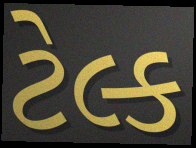
ટેલ્ક